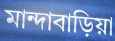
মান্দাবাড়িয়া